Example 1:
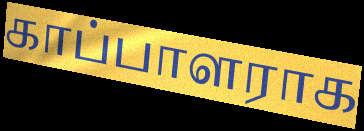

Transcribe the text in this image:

காப்பாளராக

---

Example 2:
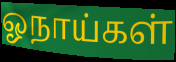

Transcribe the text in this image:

ஓநாய்கள்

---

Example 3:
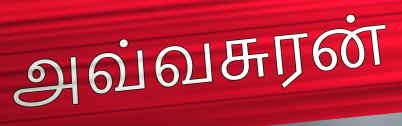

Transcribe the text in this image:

அவ்வசுரன்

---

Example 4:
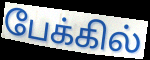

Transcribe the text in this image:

பேக்கில்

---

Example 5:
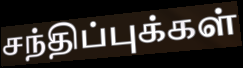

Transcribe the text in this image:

சந்திப்புக்கள்